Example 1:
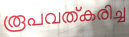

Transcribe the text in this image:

രൂപവത്കരിച്ച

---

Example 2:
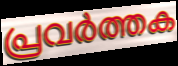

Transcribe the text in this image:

പ്രവർത്തക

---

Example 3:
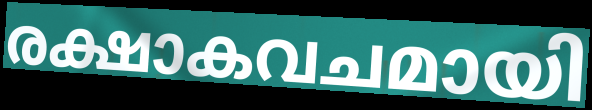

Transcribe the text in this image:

രക്ഷാകവചമായി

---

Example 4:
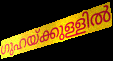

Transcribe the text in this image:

ഗുഹയ്ക്കുള്ളിൽ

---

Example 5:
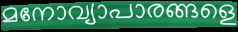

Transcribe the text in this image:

മനോവ്യാപാരങ്ങളെ